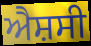
ਐਸ਼ਸੀ